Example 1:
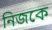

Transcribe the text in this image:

নিজকে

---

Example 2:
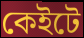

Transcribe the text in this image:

কেইটে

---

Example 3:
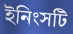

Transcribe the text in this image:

ইনিংসটি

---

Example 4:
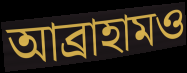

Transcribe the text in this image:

আব্রাহামও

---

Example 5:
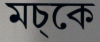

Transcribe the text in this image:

মচ্কে